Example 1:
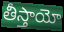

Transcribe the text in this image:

తీస్తాయో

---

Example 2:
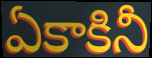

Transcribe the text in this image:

ఏకాకినీ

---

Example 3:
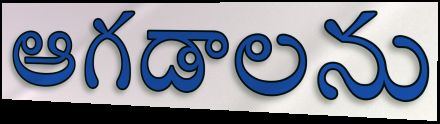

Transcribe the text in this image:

ఆగడాలను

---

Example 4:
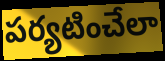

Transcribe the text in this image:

పర్యటించేలా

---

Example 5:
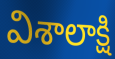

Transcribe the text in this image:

విశాలాక్షి